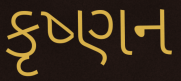
કૃષ્ણન